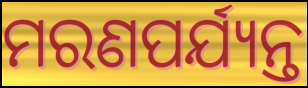
ମରଣପର୍ଯ୍ୟନ୍ତ